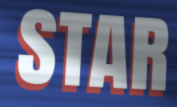
STAR